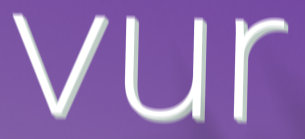
vur